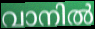
വാനിൽ